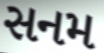
સનમ